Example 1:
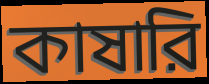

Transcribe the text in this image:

কাষারি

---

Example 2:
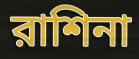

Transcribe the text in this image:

রাশিনা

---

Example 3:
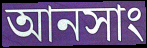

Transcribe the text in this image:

আনসাং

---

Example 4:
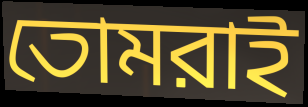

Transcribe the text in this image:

তোমরাই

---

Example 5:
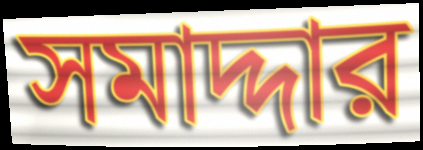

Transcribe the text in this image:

সমাদ্দার